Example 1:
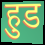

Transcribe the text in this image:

हुड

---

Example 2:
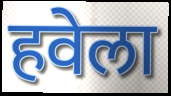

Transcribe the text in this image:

हवेला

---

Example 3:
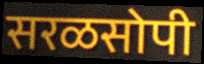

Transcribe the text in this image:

सरळसोपी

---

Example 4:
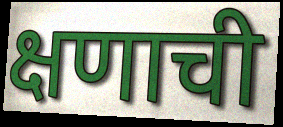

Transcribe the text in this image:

क्षणाची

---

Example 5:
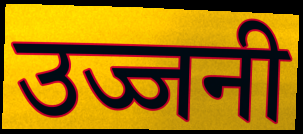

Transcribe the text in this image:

उज्जनी